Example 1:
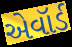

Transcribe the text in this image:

એવૉર્ડ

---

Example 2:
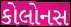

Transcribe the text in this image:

કોલોનસ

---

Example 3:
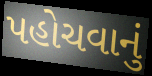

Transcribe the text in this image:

પહોચવાનું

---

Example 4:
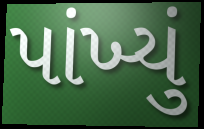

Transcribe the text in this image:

પાંખ્યું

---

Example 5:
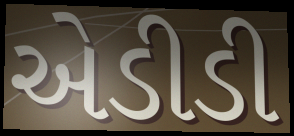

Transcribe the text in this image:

એડીડી